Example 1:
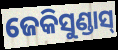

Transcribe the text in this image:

ଜେକିସୁଣ୍ଡାସ୍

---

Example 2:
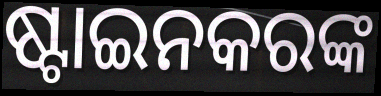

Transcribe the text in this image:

ଷ୍ଟାଇନକରଙ୍କ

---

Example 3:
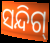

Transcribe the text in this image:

ସନ୍ଦିଗ୍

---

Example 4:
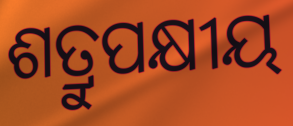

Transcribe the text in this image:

ଶତ୍ରୁପକ୍ଷୀୟ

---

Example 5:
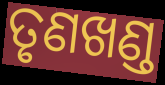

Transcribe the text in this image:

ତୃଣଖଣ୍ଡ